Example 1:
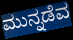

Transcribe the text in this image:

ಮುನ್ನಡೆವ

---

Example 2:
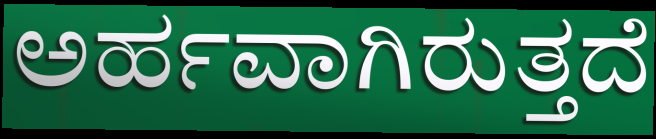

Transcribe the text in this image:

ಅರ್ಹವಾಗಿರುತ್ತದೆ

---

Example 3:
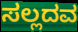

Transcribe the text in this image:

ಸಲ್ಲದವ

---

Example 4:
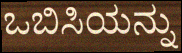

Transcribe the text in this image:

ಒಬಿಸಿಯನ್ನು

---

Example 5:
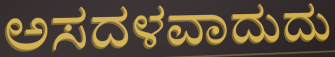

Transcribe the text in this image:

ಅಸದಳವಾದುದು